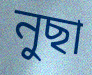
নুছা